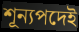
শূন্যপদেই